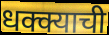
धक्क्याची